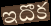
ఇదొక